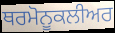
ਥਰਮੋਨੂਕਲੀਅਰ